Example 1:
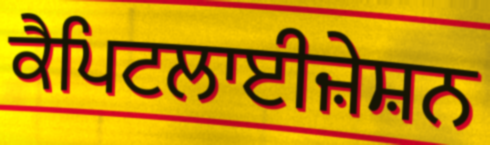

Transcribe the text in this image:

ਕੈਪਿਟਲਾਈਜ਼ੇਸ਼ਨ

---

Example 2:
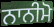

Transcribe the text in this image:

ਨਾਨੀਮੋ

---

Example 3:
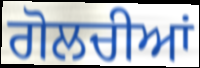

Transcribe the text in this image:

ਗੋਲਚੀਆਂ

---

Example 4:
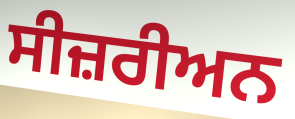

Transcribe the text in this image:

ਸੀਜ਼ਰੀਅਨ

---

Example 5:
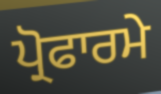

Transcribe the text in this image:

ਪ੍ਰੋਫਾਰਮੇ